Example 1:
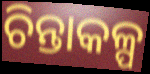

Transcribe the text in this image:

ଚିନ୍ତାକଳ୍ପ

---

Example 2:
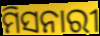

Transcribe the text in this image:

ମିସନାରୀ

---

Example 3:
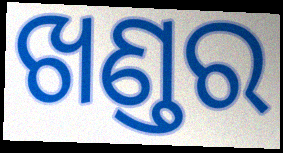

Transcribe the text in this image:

ଖଣ୍ଡର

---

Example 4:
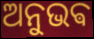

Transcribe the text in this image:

ଅନୁଭଵ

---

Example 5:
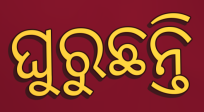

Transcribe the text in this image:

ଘୁରୁଛନ୍ତି